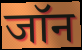
जॉन